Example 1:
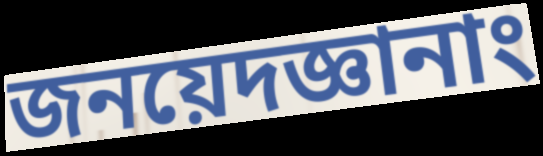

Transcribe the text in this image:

জনয়েদজ্ঞানাং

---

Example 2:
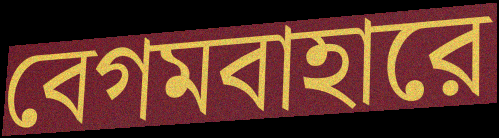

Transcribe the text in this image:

বেগমবাহারে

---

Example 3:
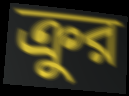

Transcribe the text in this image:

ক্রুর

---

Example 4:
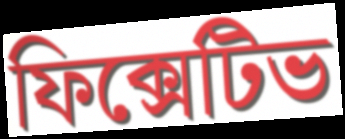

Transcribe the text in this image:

ফিক্সেটিভ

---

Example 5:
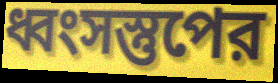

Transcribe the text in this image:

ধ্বংসস্তুপের